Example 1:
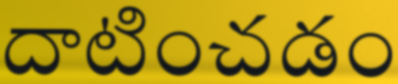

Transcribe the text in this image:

దాటించడం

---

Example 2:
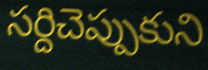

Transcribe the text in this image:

సర్దిచెప్పుకుని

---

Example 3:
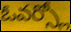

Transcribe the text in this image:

ఓవర్స్లో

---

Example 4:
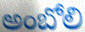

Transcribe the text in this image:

అంబోలి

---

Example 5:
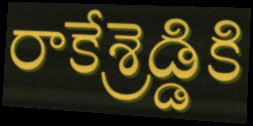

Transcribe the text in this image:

రాకేశ్రెడ్డికి